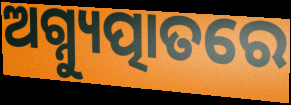
ଅଗ୍ନ୍ୟୁତ୍ପାତରେ